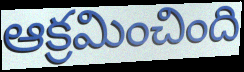
ఆక్రమించింది